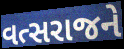
વત્સરાજને